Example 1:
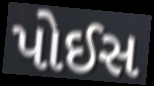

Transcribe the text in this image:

પોઈસ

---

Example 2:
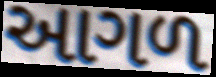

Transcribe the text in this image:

આગળ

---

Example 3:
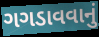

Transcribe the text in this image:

ગગડાવવાનું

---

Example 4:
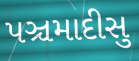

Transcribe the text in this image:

પઞ્ચમાદીસુ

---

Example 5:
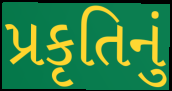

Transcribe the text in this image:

પ્રકૃતિનું